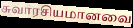
சுவாரசியமானவை